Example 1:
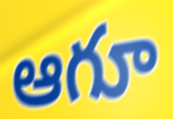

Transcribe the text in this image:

ఆగూ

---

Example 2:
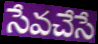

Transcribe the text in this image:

సేవచేసే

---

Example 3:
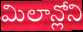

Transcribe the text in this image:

మిలాన్లోని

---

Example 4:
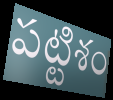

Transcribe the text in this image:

పట్టిశం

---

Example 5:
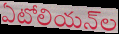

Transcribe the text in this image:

ఏటోలియన్‌ల